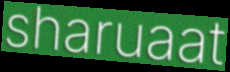
sharuaat